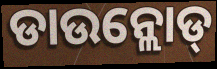
ଡାଉନ୍ଲୋଡ୍